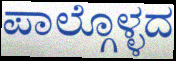
ಪಾಲ್ಗೊಳ್ಳದ